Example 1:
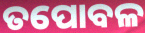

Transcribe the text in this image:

ତପୋବଳ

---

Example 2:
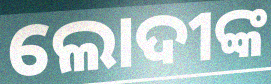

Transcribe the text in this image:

ଲୋଦୀଙ୍କ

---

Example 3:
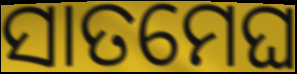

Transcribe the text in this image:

ସାତମେଘ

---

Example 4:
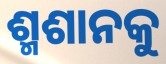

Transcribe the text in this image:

ଶ୍ମଶାନକୁ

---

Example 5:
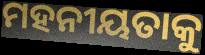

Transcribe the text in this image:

ମହନୀୟତାକୁ